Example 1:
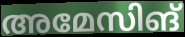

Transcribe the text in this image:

അമേസിങ്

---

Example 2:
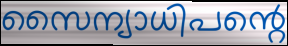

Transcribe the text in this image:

സൈന്യാധിപന്റെ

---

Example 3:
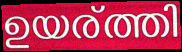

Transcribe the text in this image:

ഉയര്ത്തി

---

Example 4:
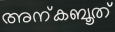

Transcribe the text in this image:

അന്കബൂത്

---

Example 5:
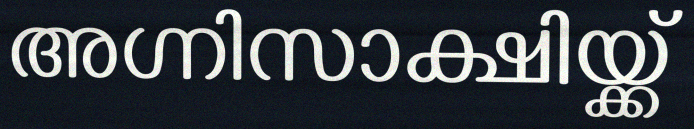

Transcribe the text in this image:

അഗ്നിസാക്ഷിയ്ക്ക്